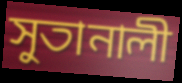
সুতানালী